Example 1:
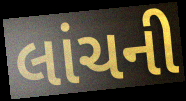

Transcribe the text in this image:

લાંચની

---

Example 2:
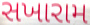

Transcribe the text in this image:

સખારામ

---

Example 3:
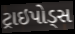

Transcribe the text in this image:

ટ્રાઇપોડ્સ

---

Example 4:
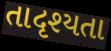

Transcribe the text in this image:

તાદૃશ્યતા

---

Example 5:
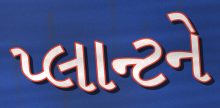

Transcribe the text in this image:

પ્લાન્ટને